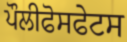
ਪੌਲੀਫੋਸਫੇਟਸ